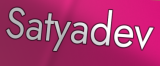
Satyadev